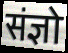
संज्ञो